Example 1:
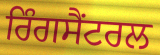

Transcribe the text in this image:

ਰਿੰਗਸੈਂਟਰਲ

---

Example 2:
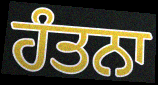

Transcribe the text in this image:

ਹੰਤਨਾ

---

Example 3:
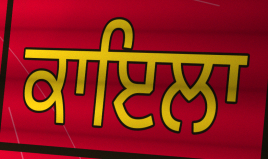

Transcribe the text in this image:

ਕਾਇਲਾ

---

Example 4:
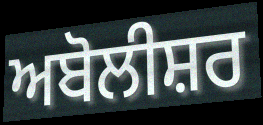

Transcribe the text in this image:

ਅਬੋਲੀਸ਼ਰ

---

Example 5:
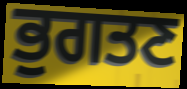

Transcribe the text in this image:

ਭੁਗਤਣ